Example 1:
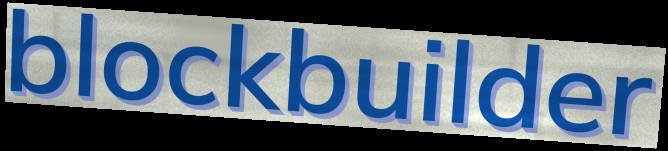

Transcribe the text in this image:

blockbuilder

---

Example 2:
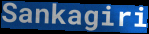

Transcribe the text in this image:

Sankagiri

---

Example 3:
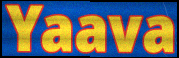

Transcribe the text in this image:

Yaava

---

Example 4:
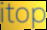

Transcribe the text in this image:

itop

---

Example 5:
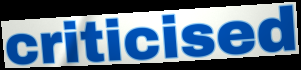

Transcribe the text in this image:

criticised